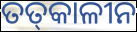
ତତ୍‌କାଳୀନ